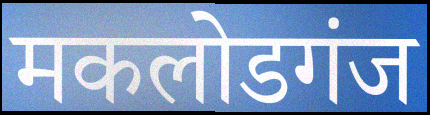
मकलोडगंज